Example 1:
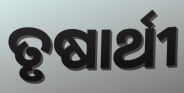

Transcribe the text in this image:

ତୃଷାର୍ଥୀ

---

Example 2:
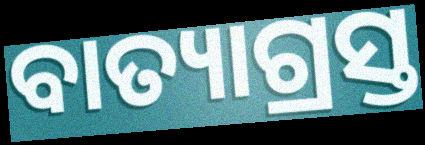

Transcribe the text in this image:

ବାତ୍ୟାଗ୍ରସ୍ତ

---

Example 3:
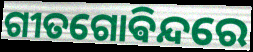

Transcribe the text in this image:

ଗୀତଗୋଵିନ୍ଦରେ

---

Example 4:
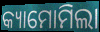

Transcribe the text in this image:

କ୍ୟାମୋମିଲା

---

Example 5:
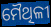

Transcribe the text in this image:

ମୈଥିଳୀ